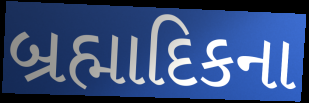
બ્રહ્માદિકના